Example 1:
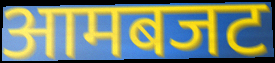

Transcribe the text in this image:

आमबजट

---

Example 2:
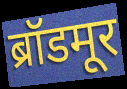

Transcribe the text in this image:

ब्रॉडमूर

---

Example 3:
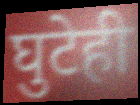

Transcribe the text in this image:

घुटेही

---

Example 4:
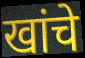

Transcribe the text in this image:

खांचे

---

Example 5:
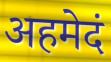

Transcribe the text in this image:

अहमेदं